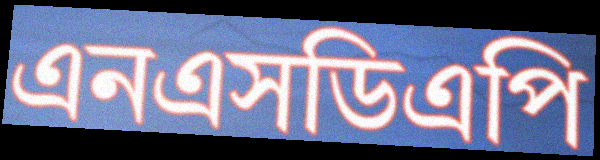
এনএসডিএপি